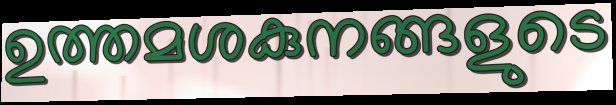
ഉത്തമശകുനങ്ങളുടെ